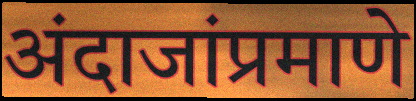
अंदाजांप्रमाणे